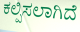
ಕಲ್ಪಿಸಲಾಗಿದೆ